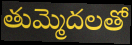
తుమ్మెదలతో